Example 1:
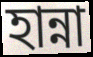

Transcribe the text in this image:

হান্না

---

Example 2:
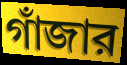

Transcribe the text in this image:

গাঁজার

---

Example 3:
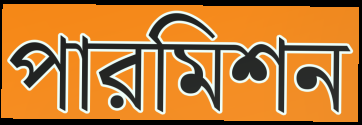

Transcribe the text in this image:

পারমিশন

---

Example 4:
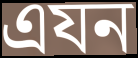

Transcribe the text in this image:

এযন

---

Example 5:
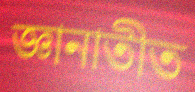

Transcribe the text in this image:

জ্ঞানাতীত